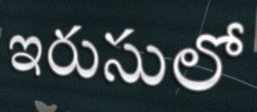
ఇరుసులో